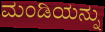
ಮಂಡಿಯನ್ನು